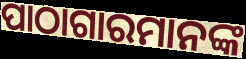
ପାଠାଗାରମାନଙ୍କ